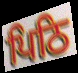
ਪਿਠਿ